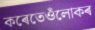
কৰেতেওঁলোকৰ